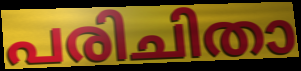
പരിചിതാ